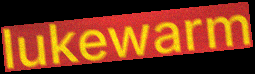
lukewarm